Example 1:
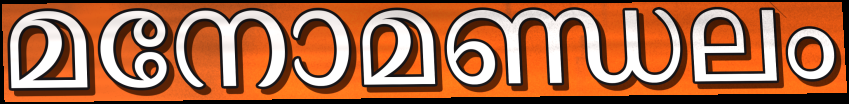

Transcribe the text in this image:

മനോമണ്ഡലം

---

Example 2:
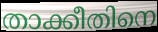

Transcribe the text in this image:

താക്കീതിനെ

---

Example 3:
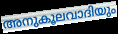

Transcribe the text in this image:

അനുകൂലവാദിയും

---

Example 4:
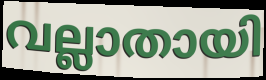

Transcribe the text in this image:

വല്ലാതായി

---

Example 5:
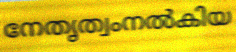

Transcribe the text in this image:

നേതൃത്വംനൽകിയ